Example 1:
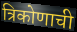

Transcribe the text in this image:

त्रिकोणाची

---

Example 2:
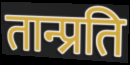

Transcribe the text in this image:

तान्प्रति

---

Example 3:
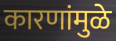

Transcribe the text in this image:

कारणांमुळे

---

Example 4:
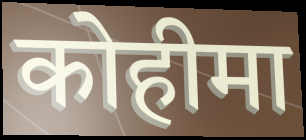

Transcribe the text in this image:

कोहीमा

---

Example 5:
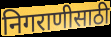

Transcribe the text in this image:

निगराणीसाठी